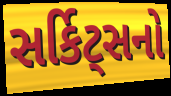
સર્કિટ્સનો